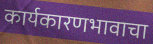
कार्यकारणभावाचा